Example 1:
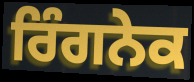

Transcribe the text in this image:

ਰਿੰਗਨੇਕ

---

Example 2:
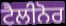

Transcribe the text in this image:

ਟੈਲੀਨੋਰ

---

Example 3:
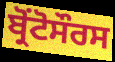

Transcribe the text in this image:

ਬ੍ਰੋਂਟੋਸੌਰਸ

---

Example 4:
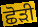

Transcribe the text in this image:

ਛੋੜੀ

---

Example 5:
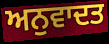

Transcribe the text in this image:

ਅਨੁਵਾਦਤ